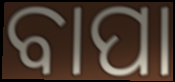
ବାପା